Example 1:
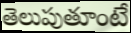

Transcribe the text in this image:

తెలుపుతూంటే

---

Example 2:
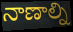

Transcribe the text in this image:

నాణాల్ని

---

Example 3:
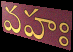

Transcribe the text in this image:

వహః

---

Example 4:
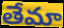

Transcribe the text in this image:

తేమా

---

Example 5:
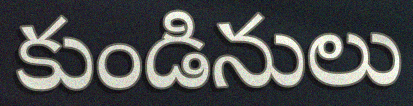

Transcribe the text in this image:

కుండినులు